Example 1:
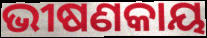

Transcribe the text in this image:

ଭୀଷଣକାୟ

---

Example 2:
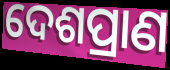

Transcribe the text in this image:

ଦେଶପ୍ରାଣ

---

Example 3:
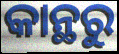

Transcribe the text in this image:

କାନ୍ଥରୁ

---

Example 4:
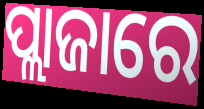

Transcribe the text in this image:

ପ୍ଲାଜାରେ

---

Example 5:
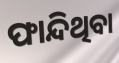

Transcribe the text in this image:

ଫାନ୍ଦିଥିବା